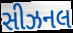
સીઝનલ